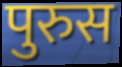
पुरुस